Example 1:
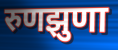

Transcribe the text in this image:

रुणझुणा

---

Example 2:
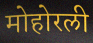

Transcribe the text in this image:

मोहोरली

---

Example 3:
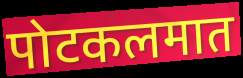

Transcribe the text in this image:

पोटकलमात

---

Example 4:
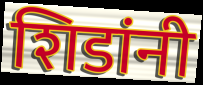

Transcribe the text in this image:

शिडांनी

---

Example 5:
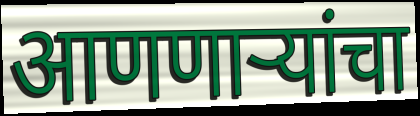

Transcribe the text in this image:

आणणाऱ्यांचा